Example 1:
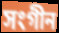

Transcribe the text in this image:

সংগীন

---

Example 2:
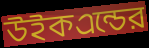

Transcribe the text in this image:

উইকএন্ডের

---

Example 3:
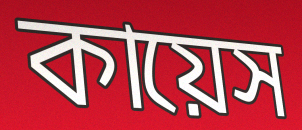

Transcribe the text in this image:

কায়েস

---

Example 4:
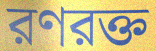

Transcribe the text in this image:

রণরক্ত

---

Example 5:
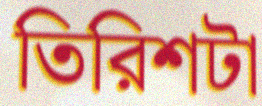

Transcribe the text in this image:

তিরিশটা